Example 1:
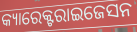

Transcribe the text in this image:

କ୍ୟାରେକ୍ଟରାଇଜେସନ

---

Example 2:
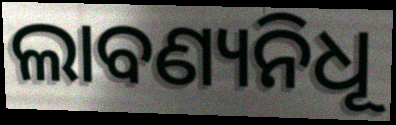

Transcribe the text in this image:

ଲାବଣ୍ୟନିଧୂ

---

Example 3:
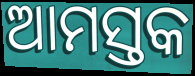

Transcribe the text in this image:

ଆମସ୍ତକ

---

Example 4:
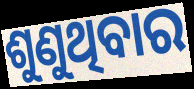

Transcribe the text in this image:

ଶୁଣୁଥିବାର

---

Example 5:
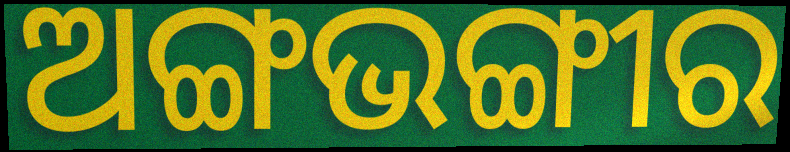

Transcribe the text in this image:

ଅଙ୍ଗଭଙ୍ଗୀର